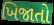
ખિજાતો